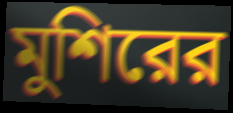
মুশিরের